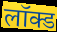
लॉक्ड